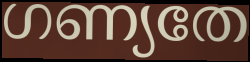
ഗണ്യതേ